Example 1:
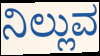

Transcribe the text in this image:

ನಿಲ್ಲುವ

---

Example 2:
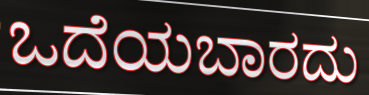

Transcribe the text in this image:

ಒದೆಯಬಾರದು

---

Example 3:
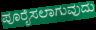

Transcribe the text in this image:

ಪೂರೈಸಲಾಗುವುದು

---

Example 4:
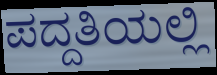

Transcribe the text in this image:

ಪದ್ದತಿಯಲ್ಲಿ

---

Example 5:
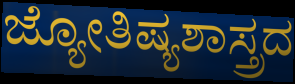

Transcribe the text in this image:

ಜ್ಯೋತಿಷ್ಯಶಾಸ್ತ್ರದ